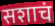
सशाचं